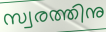
സ്വരത്തിനു